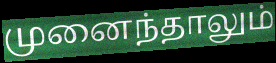
முனைந்தாலும்